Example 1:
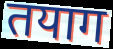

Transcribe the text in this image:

तयाग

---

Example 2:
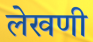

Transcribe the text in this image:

लेखणी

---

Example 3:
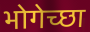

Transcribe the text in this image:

भोगेच्छा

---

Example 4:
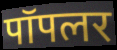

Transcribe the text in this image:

पॉपलर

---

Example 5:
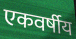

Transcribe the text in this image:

एकवर्षीय